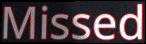
Missed